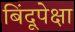
बिंदूपेक्षा